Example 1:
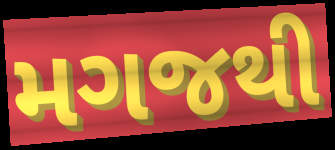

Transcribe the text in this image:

મગજથી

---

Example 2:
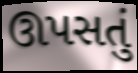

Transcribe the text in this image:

ઊપસતું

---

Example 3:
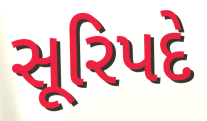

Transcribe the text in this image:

સૂરિપદે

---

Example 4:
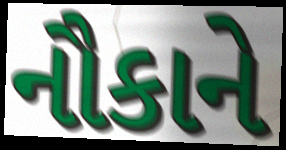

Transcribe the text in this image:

નૌકાને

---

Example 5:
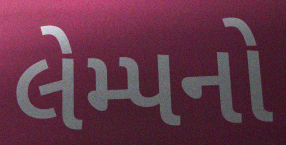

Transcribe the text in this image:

લેમ્પનો